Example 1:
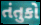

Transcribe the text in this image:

તંતુકો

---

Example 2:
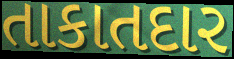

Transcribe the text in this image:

તાકાતદાર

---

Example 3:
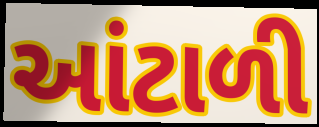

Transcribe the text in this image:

આંટાળી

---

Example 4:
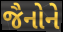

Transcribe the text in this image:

જૈનોને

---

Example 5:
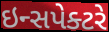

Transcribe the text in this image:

ઇન્સપેક્ટરે